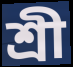
শ্রী